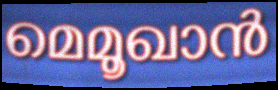
മെമൂഖാൻ